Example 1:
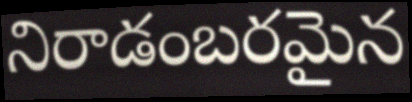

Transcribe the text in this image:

నిరాడంబరమైన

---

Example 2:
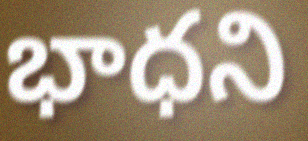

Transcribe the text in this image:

భాధని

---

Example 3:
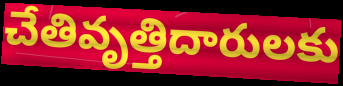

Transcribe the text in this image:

చేతివృత్తిదారులకు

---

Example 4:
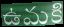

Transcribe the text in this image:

ఉమకి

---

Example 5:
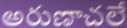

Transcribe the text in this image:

అరుణాచలే